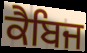
ਕੈਬਿਜ